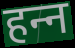
हन्न